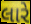
લારે